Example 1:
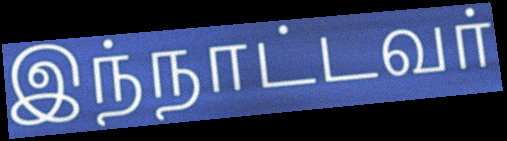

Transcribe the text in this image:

இந்நாட்டவர்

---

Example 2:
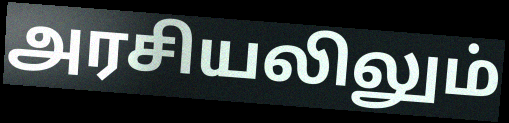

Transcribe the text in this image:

அரசியலிலும்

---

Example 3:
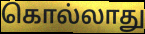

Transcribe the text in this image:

கொல்லாது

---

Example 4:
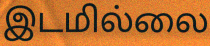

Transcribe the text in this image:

இடமில்லை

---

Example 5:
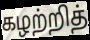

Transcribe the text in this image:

கழற்றித்